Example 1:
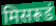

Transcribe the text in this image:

मिसरूडं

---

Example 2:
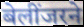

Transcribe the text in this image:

बेलींजरने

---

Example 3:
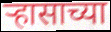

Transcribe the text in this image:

ऱ्हासाच्या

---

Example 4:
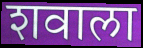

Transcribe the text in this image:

शवाला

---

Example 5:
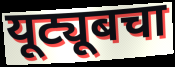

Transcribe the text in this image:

यूट्यूबचा